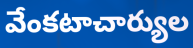
వేంకటాచార్యుల